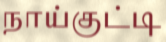
நாய்குட்டி